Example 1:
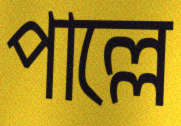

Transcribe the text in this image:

পাল্লে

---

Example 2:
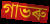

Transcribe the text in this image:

গাভৰু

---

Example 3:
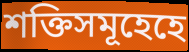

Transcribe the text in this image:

শক্তিসমূহেহে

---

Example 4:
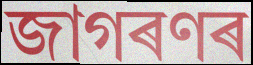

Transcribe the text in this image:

জাগৰণৰ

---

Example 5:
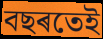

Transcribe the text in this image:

বছৰতেই